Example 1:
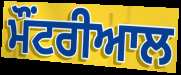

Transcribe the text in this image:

ਮੌਂਟਰੀਆਲ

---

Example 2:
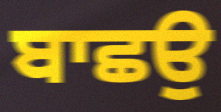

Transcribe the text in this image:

ਬਾਛਉ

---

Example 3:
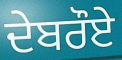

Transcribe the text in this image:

ਦੇਬਰੌਏ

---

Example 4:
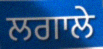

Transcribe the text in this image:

ਲਗਾਲੇ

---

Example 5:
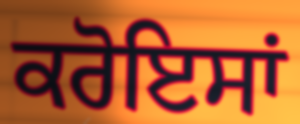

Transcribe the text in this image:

ਕਰੋਇਸਾਂ